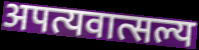
अपत्यवात्सल्य